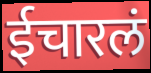
ईचारलं